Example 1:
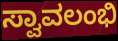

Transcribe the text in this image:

ಸ್ವಾವಲಂಭಿ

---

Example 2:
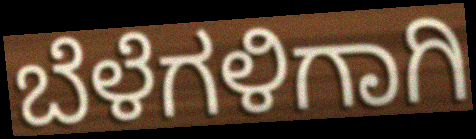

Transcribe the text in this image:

ಬೆಳೆಗಳಿಗಾಗಿ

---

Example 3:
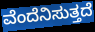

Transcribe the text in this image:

ವೆಂದೆನಿಸುತ್ತದೆ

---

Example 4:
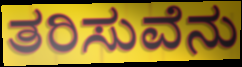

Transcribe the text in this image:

ತರಿಸುವೆನು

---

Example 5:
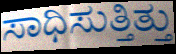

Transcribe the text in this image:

ಸಾಧಿಸುತ್ತಿತ್ತು